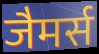
जैमर्स